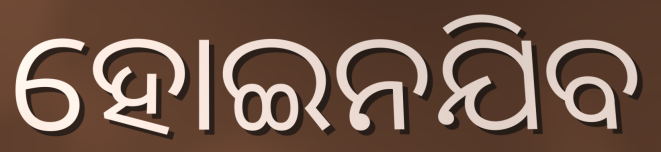
ହୋଇନଯିବ